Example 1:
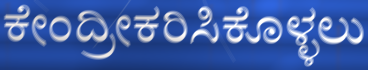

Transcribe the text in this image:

ಕೇಂದ್ರೀಕರಿಸಿಕೊಳ್ಳಲು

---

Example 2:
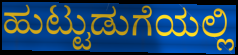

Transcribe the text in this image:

ಹುಟ್ಟುಡುಗೆಯಲ್ಲಿ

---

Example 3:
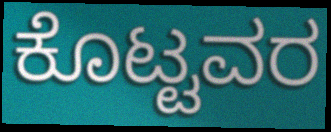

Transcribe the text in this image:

ಕೊಟ್ಟವರ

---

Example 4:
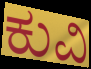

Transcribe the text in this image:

ಕುವಿ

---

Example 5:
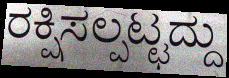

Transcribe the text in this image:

ರಕ್ಷಿಸಲ್ಪಟ್ಟದ್ದು